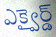
ఎక్వైర్డ్